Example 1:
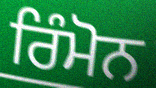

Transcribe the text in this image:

ਰਿੰਮੋਨ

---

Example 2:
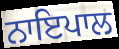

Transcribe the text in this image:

ਨਾਇਪਾਲ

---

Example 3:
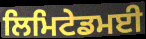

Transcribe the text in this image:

ਲਿਮਿਟੇਡਮਈ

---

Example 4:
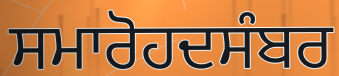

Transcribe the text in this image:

ਸਮਾਰੋਹਦਸੰਬਰ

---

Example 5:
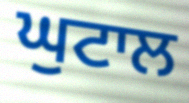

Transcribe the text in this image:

ਘੁਟਾਲ